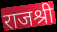
राजश्री